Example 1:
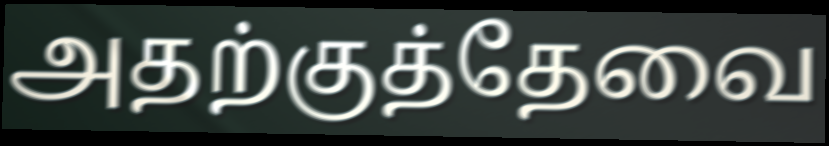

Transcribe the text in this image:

அதற்குத்தேவை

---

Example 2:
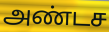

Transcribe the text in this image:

அண்டச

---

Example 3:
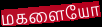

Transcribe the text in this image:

மகளையோ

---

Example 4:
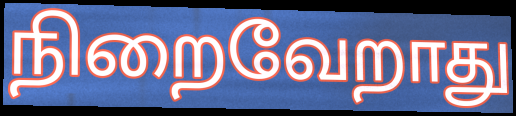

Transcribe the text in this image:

நிறைவேறாது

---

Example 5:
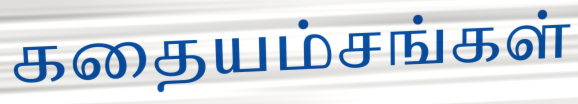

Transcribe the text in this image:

கதையம்சங்கள்